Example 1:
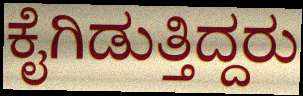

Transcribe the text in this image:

ಕೈಗಿಡುತ್ತಿದ್ದರು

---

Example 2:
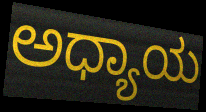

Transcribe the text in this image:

ಅಧ್ಯಾಯ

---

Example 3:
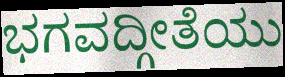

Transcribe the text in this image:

ಭಗವದ್ಗೀತೆಯು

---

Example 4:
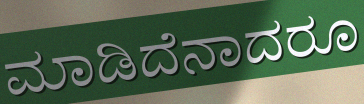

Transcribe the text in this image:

ಮಾಡಿದೆನಾದರೂ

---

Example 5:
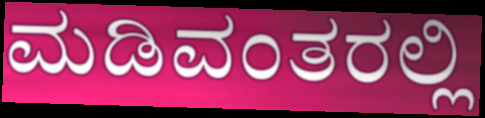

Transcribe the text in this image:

ಮಡಿವಂತರಲ್ಲಿ